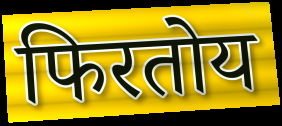
फिरतोय